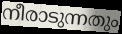
നീരാടുന്നതും